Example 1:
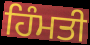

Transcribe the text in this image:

ਹਿੰਮਤੀ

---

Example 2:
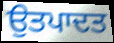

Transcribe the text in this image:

ਉਤਪਾਦਤ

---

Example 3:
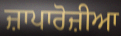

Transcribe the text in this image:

ਜ਼ਾਪਾਰੋਜ਼ੀਆ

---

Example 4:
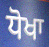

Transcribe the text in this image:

ਧੋਖਾ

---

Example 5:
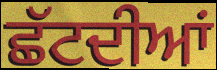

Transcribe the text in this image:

ਛੱਟਦੀਆਂ